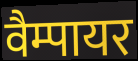
वैम्पायर